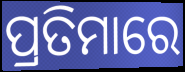
ପ୍ରତିମାରେ